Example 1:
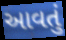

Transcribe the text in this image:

આવતું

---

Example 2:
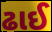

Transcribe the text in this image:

ઢાઈ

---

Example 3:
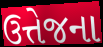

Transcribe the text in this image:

ઉત્તેજના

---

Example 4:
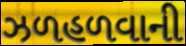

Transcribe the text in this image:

ઝળહળવાની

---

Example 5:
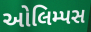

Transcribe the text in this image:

ઓલિમ્પસ